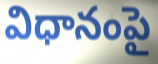
విధానంపై